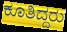
ಕೂತಿದ್ದರು